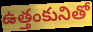
ఉత్తంకునితో